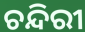
ଚନ୍ଦିରୀ